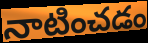
నాటించడం